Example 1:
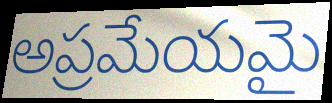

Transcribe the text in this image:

అప్రమేయమై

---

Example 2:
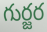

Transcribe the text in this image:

గుర్జర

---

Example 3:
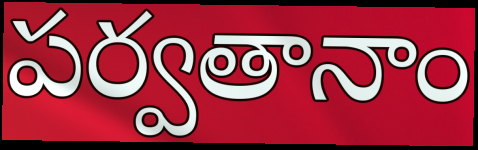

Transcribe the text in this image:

పర్వతానాం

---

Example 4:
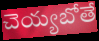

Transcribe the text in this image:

చెయ్యబోతే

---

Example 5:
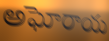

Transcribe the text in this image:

అఘోరాయ